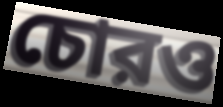
চোরও